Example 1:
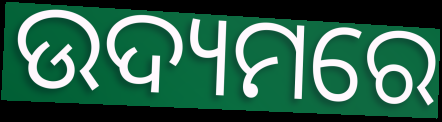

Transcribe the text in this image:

ଉଦ୍ୟମରେ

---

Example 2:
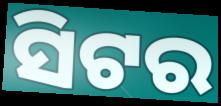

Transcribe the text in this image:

ସିଟର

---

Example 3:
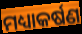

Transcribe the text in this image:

ମଧ୍ୟାକର୍ଷଣ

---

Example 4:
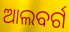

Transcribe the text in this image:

ଆଲବର୍ଗ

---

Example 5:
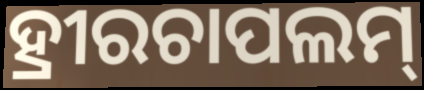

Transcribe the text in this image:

ହ୍ରୀରଚାପଲମ୍